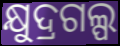
କ୍ଷୁଦ୍ରଗଲ୍ପ